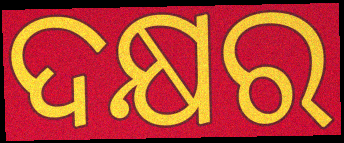
ଦକ୍ଷର